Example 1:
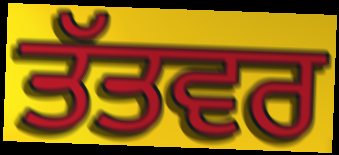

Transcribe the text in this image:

ਤੱਤਵਰ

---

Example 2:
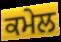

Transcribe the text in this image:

ਕਮੇਲ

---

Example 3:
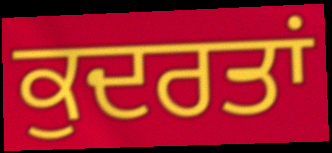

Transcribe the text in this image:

ਕੁਦਰਤਾਂ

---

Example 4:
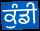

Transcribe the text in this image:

ਕੁੰਡੀ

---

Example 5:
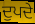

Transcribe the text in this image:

ਦੁਪਦੇ